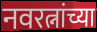
नवरत्नांच्या